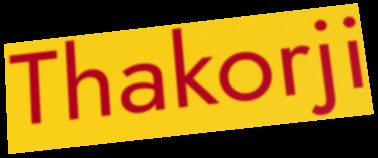
Thakorji